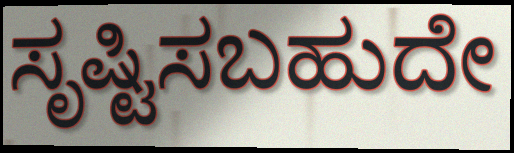
ಸೃಷ್ಟಿಸಬಹುದೇ